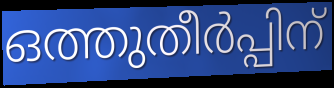
ഒത്തുതീർപ്പിന്